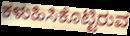
ಕಳುಹಿಸಿಕೊಟ್ಟಿರುವ